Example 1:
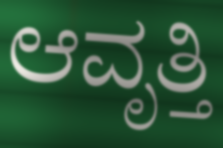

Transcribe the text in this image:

ಆವೃತ್ತಿ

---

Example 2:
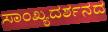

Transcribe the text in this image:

ಸಾಂಖ್ಯದರ್ಶನದ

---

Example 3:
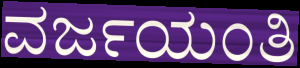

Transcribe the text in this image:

ವರ್ಜಯಂತಿ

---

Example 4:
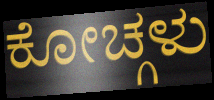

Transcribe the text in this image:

ಕೋಚ್ಗಳು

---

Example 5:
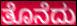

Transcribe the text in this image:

ತೊನೆದು